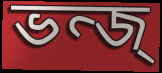
ভন্জ্